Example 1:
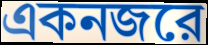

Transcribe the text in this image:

একনজরে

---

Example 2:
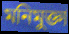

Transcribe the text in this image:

মনিমুক্তা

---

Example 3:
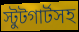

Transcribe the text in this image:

স্টুটগার্টসহ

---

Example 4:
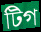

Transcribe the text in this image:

টিগ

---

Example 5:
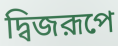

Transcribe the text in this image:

দ্বিজরূপে